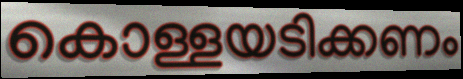
കൊള്ളയടിക്കണം